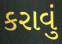
કરાવું